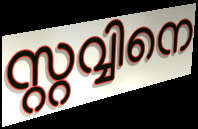
സ്റ്റവ്വിനെ